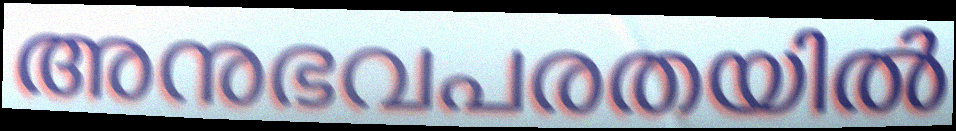
അനുഭവപരതയിൽ